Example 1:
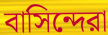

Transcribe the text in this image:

বাসিন্দেরা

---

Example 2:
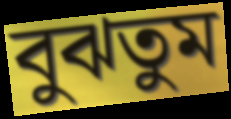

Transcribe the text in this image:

বুঝতুম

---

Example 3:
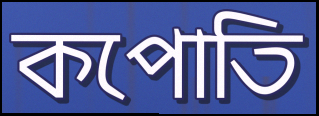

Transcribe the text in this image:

কপোতি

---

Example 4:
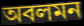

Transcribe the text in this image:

অবলমন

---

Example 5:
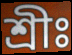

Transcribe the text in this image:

শ্রীঃ